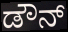
ಡೌನ್